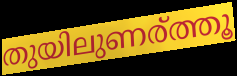
തുയിലുണര്ത്തൂ